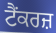
ਟੈਂਕਰਜ਼